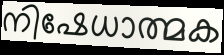
നിഷേധാത്മക